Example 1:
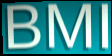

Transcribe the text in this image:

BMI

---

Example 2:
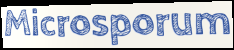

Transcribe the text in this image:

Microsporum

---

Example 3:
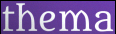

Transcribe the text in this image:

thema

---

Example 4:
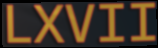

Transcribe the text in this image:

LXVII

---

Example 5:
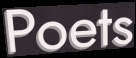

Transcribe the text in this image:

Poets